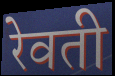
रेवती